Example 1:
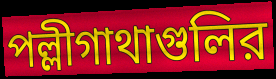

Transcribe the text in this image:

পল্লীগাথাগুলির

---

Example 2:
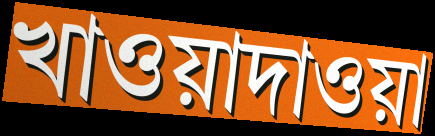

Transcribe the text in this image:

খাওয়াদাওয়া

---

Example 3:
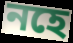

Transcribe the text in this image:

নহে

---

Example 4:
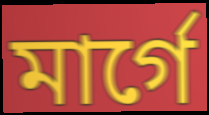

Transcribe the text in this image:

মার্গে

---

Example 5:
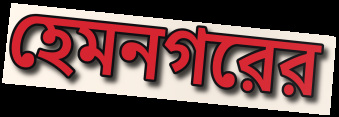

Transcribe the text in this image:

হেমনগরের